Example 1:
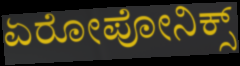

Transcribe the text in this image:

ಏರೋಪೋನಿಕ್ಸ್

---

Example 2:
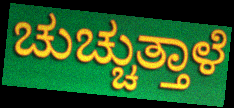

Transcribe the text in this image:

ಚುಚ್ಚುತ್ತಾಳೆ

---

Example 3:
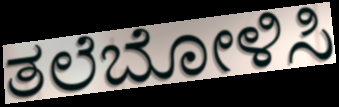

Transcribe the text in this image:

ತಲೆಬೋಳಿಸಿ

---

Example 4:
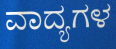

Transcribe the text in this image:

ವಾದ್ಯಗಳ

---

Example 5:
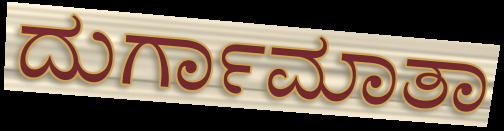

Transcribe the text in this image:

ದುರ್ಗಾಮಾತಾ